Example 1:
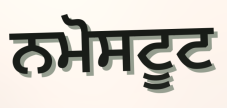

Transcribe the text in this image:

ਨਮੋਸਟੂਟ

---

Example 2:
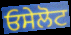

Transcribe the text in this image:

ਓਸੇਲੋਟ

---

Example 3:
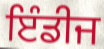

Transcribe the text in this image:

ਇੰਡੀਜ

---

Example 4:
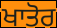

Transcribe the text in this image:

ਖਾਤੋਰ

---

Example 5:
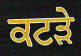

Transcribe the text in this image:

ਕਟੜੇ